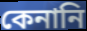
কেনানি